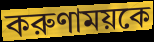
করুণাময়কে